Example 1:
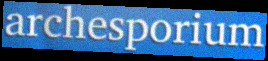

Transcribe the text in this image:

archesporium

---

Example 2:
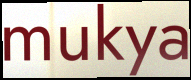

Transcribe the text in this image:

mukya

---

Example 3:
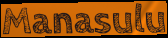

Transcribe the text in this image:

Manasulu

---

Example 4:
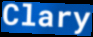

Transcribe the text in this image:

Clary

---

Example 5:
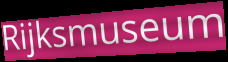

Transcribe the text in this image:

Rijksmuseum